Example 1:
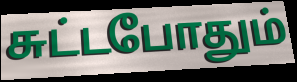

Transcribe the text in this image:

சுட்டபோதும்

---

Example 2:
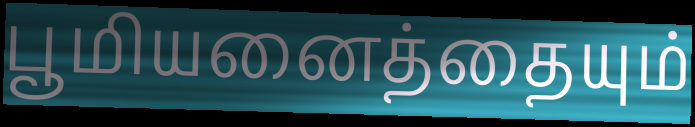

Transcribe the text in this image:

பூமியனைத்தையும்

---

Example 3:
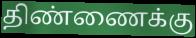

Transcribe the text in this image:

திண்ணைக்கு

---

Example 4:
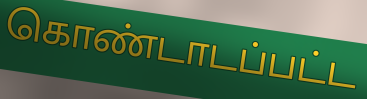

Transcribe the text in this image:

கொண்டாடப்பட்ட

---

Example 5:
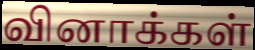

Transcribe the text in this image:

வினாக்கள்